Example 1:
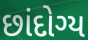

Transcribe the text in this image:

છાંદોગ્ય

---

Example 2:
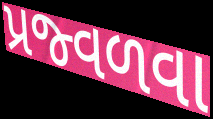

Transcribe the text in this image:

પ્રજ્વળવા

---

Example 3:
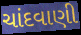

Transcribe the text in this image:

ચાંદવાણી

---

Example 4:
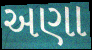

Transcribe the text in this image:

અણા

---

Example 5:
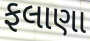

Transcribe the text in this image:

ફલાણા